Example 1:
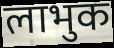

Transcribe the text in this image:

लाभुक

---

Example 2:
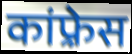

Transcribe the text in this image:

कांफ़्रेस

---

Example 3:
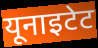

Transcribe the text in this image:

यूनाइटेट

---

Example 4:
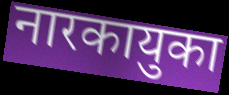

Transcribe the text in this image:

नारकायुका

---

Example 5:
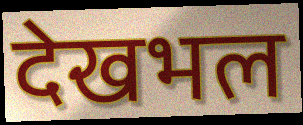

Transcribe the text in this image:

देखभल